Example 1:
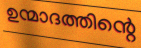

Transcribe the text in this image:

ഉന്മാദത്തിന്റെ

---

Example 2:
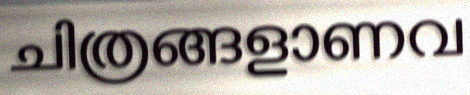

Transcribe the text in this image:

ചിത്രങ്ങളാണവ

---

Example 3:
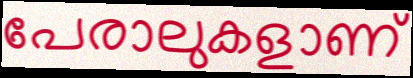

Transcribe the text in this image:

പേരാലുകളാണ്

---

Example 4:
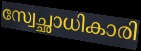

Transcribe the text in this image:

സ്വേച്ഛാധികാരി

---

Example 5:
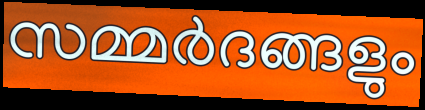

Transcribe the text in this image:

സമ്മർദങ്ങളും